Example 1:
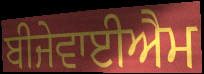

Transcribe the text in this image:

ਬੀਜੇਵਾਈਐਮ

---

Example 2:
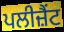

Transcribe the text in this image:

ਪਲੀਜ਼ੈਂਟ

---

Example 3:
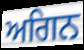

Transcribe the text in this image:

ਅਗਿਨ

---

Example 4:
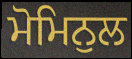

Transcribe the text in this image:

ਮੋਮਿਨੁਲ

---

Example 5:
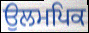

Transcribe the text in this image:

ਉਲਮਪਿਕ